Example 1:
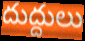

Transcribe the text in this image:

దుద్దులు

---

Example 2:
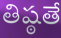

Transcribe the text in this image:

తిష్ఠతే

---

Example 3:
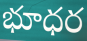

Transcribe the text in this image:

భూధర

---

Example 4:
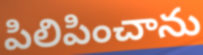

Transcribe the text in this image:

పిలిపించాను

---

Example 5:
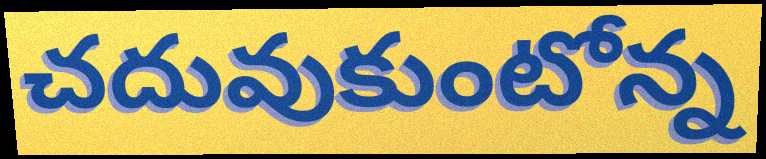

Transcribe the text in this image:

చదువుకుంటోన్న